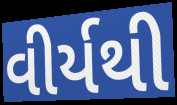
વીર્યથી